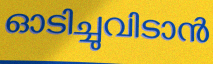
ഓടിച്ചുവിടാൻ